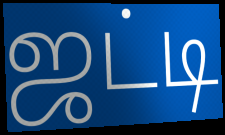
ஜட்டி